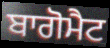
ਬਾਗੋਮੈਟ